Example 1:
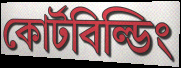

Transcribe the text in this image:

কোর্টবিল্ডিং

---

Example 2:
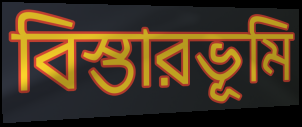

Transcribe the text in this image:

বিস্তারভূমি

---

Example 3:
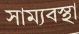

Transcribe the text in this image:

সাম্যবস্থা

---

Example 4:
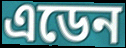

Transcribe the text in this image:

এডেন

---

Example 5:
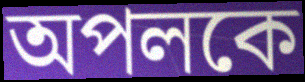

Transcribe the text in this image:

অপলকে